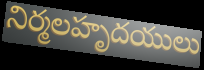
నిర్మలహృదయులు